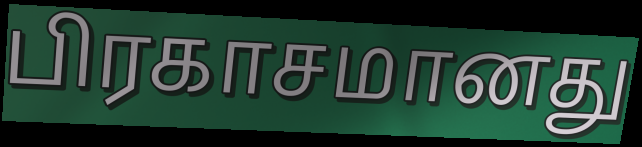
பிரகாசமானது